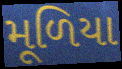
મૂળિયા